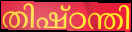
തിഷ്ഠന്തി